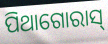
ପିଥାଗୋରାସ୍